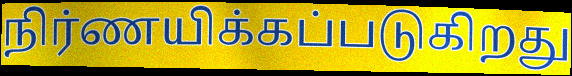
நிர்ணயிக்கப்படுகிறது